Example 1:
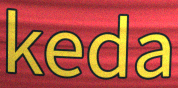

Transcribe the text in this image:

keda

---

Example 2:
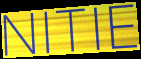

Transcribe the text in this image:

NITIE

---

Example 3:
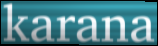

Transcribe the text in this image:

karana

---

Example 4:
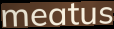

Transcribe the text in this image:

meatus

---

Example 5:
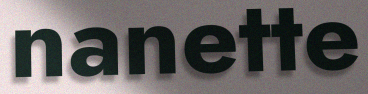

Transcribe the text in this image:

nanette